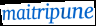
maitripune